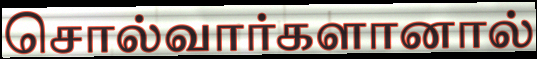
சொல்வார்களானால்